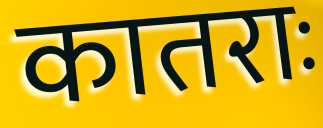
कातराः